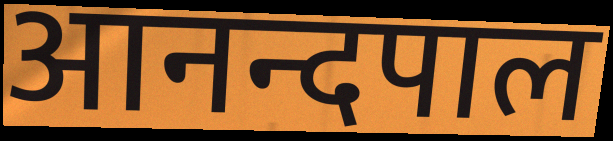
आनन्दपाल